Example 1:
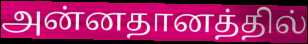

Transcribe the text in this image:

அன்னதானத்தில்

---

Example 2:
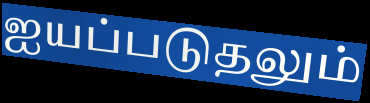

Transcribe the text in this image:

ஐயப்படுதலும்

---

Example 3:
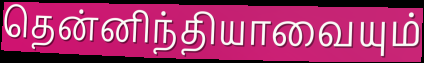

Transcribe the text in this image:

தென்னிந்தியாவையும்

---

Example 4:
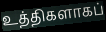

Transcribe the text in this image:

உத்திகளாகப்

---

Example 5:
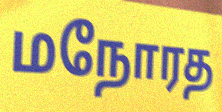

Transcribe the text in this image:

மநோரத